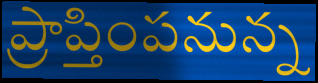
ప్రాప్తింపనున్న